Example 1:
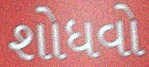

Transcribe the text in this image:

શોધવો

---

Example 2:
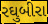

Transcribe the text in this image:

રઘુબીરા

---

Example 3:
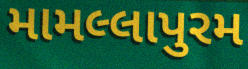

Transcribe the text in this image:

મામલ્લાપુરમ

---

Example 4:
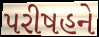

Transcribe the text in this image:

પરીષહને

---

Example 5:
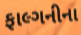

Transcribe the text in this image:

ફાલ્ગનીના